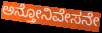
ಅನ್ತೋನಿವೇಸನೇ